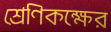
শ্রেণিকক্ষের